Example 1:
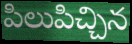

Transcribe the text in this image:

పిలుపిచ్చిన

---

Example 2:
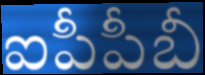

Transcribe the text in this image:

ఐపీపీబీ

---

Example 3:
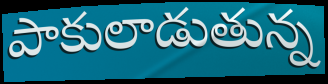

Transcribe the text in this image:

పాకులాడుతున్న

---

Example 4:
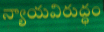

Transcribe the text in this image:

న్యాయవిరుద్ధం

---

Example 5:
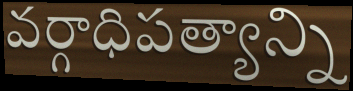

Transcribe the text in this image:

వర్గాధిపత్యాన్ని